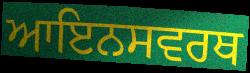
ਆਇਨਸਵਰਥ